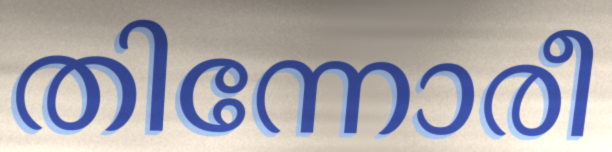
തിന്നോരീ